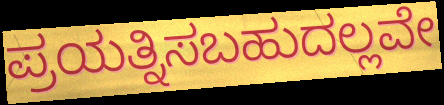
ಪ್ರಯತ್ನಿಸಬಹುದಲ್ಲವೇ